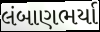
લંબાણભર્યા